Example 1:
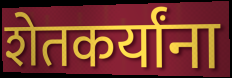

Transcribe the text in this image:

शेतकर्यांना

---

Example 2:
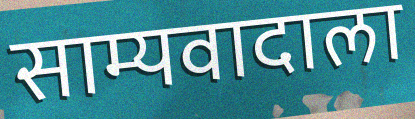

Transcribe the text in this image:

साम्यवादाला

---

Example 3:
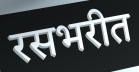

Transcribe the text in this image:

रसभरीत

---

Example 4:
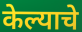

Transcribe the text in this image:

केल्याचे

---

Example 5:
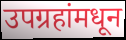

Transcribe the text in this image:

उपग्रहांमधून